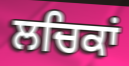
ਲਚਿਕਾਂ